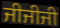
ਜੀਜੀਜੀ